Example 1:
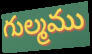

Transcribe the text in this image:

గుల్మము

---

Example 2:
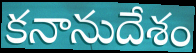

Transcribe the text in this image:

కనానుదేశం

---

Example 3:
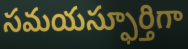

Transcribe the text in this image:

సమయస్ఫూర్తిగా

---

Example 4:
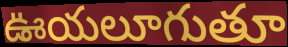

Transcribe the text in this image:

ఊయలూగుతూ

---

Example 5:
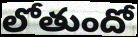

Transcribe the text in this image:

లోతుందో